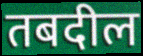
तबदील